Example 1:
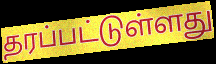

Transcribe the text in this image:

தரப்பட்டுள்ளது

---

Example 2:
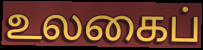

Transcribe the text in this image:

உலகைப்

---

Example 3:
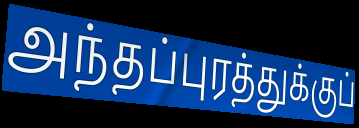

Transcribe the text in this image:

அந்தப்புரத்துக்குப்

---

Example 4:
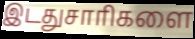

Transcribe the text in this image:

இடதுசாரிகளை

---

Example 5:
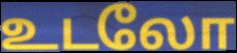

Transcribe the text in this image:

உடலோ